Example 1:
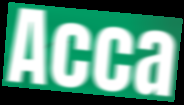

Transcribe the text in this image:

Acca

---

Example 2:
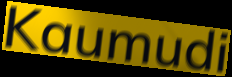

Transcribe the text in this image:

Kaumudi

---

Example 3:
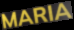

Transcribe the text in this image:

MARIA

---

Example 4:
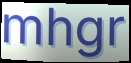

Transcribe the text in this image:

mhgr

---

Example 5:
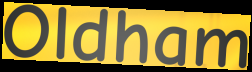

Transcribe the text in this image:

Oldham